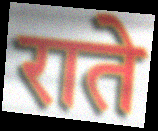
राते